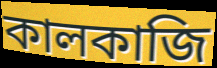
কালকাজি